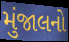
મુંજાલનો